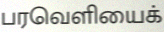
பரவெளியைக்